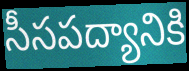
సీసపద్యానికి